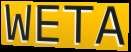
WETA